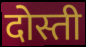
दोस्ती